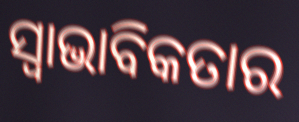
ସ୍ଵାଭାବିକତାର